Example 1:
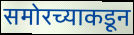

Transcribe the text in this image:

समोरच्याकडून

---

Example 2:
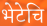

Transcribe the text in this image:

भेटेचि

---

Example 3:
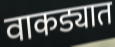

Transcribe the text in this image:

वाकड्यात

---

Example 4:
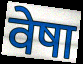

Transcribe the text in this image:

वेषा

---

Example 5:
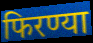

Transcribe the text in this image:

फिरण्या